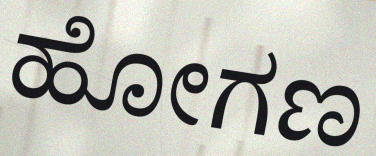
ಹೋಗಣ